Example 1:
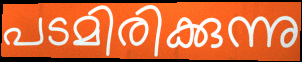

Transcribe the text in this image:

പടമിരിക്കുന്നു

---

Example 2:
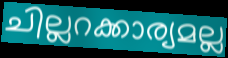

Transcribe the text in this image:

ചില്ലറക്കാര്യമല്ല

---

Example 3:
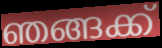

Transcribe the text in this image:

ഞങ്ങക്ക്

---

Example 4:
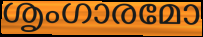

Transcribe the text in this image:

ശൃംഗാരമോ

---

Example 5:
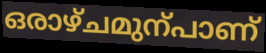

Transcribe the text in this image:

ഒരാഴ്ചമുന്പാണ്